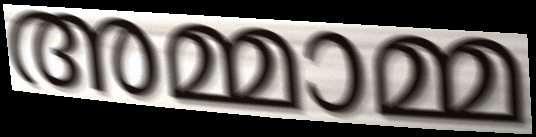
അമ്മാമ്മ